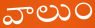
వాలుం